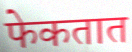
फेकतात